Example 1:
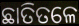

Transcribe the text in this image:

ଛାତିତଳେ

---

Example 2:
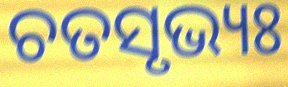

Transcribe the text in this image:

ଚତସୃଭ୍ୟଃ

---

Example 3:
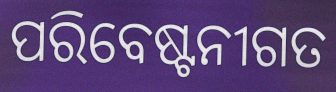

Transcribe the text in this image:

ପରିବେଷ୍ଟନୀଗତ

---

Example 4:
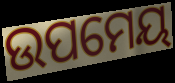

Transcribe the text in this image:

ଉପମେୟ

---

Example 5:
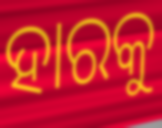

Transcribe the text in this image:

ହାରକୁ